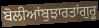
ਬੋਲੀਆਂਬੁਝਾਰਤਾਂਗੁਰੂ